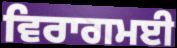
ਵਿਰਾਗਮਈ